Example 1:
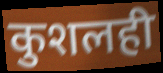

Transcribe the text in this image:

कुशलही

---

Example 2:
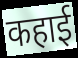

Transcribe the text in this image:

कहाई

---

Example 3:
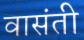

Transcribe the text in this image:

वासंती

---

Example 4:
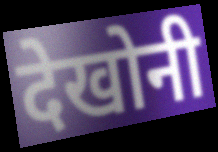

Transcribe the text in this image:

देखोनी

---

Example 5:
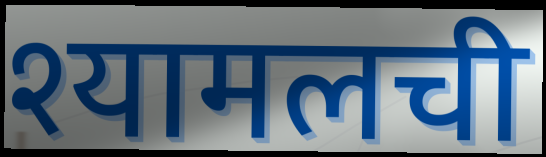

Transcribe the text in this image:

श्यामलची